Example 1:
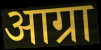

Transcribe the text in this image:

आग्रा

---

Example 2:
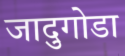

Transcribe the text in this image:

जादुगोडा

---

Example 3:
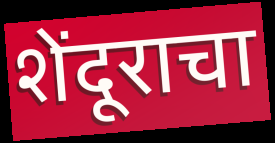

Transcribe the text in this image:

शेंदूराचा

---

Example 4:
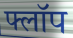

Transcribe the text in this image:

फ्लॉप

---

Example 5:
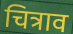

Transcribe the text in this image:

चित्राव